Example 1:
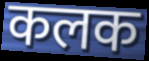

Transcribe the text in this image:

कलक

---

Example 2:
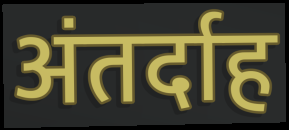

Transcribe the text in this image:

अंतर्दाह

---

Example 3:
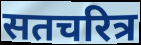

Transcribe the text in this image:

सतचरित्र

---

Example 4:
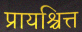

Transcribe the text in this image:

प्रायश्चित्त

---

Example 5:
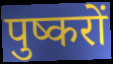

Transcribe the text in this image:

पुष्करों